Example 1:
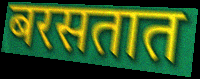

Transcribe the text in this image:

बरसतात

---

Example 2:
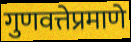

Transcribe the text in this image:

गुणवत्तेप्रमाणे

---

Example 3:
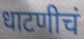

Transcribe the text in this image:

धाटणीचं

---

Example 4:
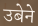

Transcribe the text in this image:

उबेने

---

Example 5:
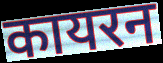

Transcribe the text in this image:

कायरन